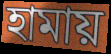
হামায়